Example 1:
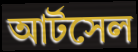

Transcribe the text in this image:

আর্টসেল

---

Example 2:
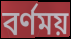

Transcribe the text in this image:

বর্ণময়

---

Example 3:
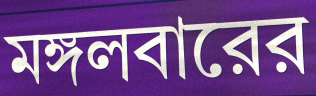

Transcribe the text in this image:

মঙ্গলবারের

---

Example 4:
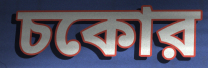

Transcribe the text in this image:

চকোর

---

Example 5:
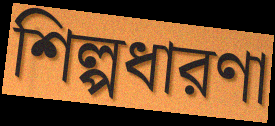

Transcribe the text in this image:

শিল্পধারণা